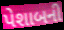
પેશાબની